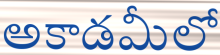
అకాడమీలో